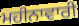
ਮਹੀਨਾਵਾਰੀ